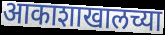
आकाशाखालच्या